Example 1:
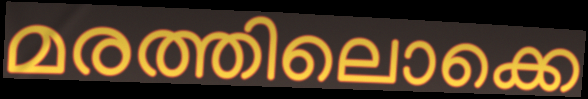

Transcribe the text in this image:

മരത്തിലൊക്കെ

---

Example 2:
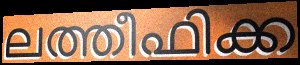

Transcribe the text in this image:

ലത്തീഫിക്ക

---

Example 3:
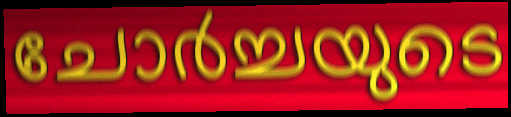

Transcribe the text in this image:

ചോർച്ചയുടെ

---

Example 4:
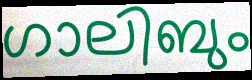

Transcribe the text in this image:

ഗാലിബും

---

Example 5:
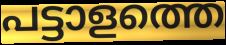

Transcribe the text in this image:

പട്ടാളത്തെ